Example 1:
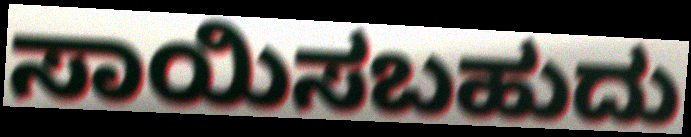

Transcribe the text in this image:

ಸಾಯಿಸಬಹುದು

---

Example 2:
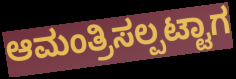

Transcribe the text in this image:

ಆಮಂತ್ರಿಸಲ್ಪಟ್ಟಾಗ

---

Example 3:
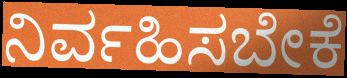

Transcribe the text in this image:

ನಿರ್ವಹಿಸಬೇಕೆ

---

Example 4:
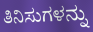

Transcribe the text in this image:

ತಿನಿಸುಗಳನ್ನು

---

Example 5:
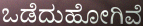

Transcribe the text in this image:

ಒಡೆದುಹೋಗಿವೆ